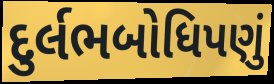
દુર્લભબોધિપણું